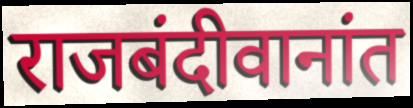
राजबंदीवानांत